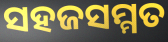
ସହଜସମ୍ମତ